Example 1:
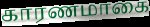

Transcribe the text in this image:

காரணமாகை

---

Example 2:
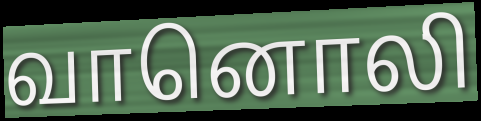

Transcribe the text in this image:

வானொலி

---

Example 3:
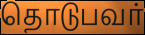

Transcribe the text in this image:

தொடுபவர்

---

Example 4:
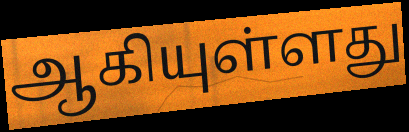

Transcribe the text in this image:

ஆகியுள்ளது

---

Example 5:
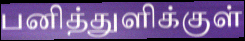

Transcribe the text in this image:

பனித்துளிக்குள்